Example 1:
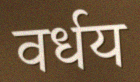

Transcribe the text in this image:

वर्धय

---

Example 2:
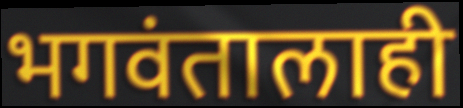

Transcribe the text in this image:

भगवंतालाही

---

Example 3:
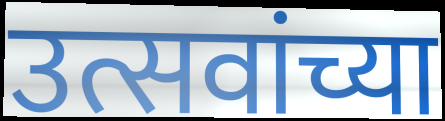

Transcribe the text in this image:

उत्सवांच्या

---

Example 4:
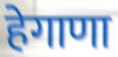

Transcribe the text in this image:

हेगाणा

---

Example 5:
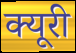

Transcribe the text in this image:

क्यूरी